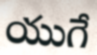
యుగే